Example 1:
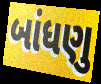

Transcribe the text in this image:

બાંધણુ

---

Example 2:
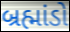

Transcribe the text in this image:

બ્રહ્માંડો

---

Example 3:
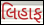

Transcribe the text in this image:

લિહાફ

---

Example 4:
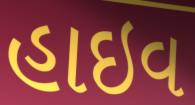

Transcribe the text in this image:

હાઇવ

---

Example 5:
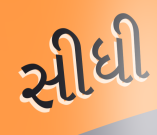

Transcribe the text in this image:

સીધી